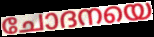
ചോദനയെ